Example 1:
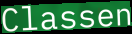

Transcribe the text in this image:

Classen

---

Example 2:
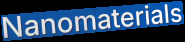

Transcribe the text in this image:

Nanomaterials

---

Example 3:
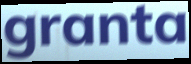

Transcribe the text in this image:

granta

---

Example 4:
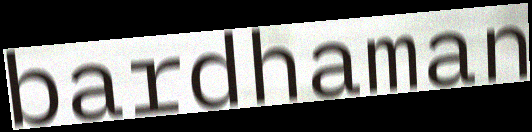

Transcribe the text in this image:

bardhaman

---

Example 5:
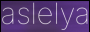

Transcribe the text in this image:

aslelya